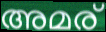
അമര്